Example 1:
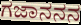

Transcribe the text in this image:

ಗಜಾನನನ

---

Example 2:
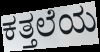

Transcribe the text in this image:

ಕತ್ತಲೆಯ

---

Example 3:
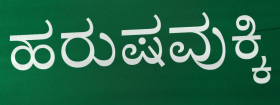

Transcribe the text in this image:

ಹರುಷವುಕ್ಕಿ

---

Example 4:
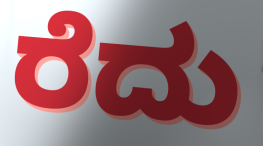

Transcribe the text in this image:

ರೆದು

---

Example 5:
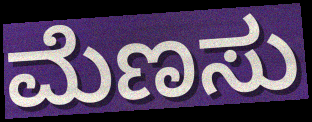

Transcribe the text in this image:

ಮೆಣಸು